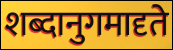
शब्दानुगमादृते